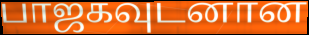
பாஜகவுடனான